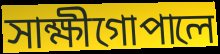
সাক্ষীগোপালে